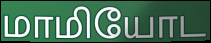
மாமியோட